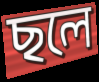
ছলে